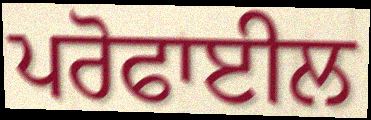
ਪਰੋਫਾਈਲ